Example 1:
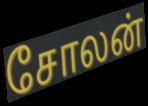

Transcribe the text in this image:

சோலன்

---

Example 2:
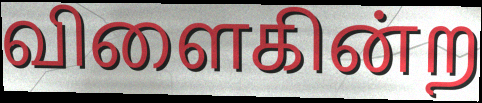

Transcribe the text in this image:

விளைகின்ற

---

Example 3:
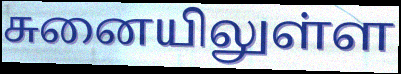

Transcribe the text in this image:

சுனையிலுள்ள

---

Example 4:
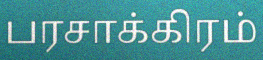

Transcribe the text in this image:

பரசாக்கிரம்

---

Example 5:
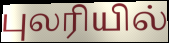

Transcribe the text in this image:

புலரியில்